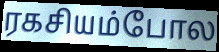
ரகசியம்போல